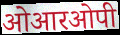
ओआरओपी